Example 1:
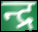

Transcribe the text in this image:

न्द्र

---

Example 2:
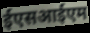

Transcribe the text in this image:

ईएसआईएम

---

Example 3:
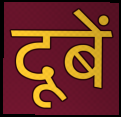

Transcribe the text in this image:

दूबें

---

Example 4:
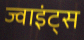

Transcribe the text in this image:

ज्वाइंट्स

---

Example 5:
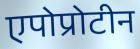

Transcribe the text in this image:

एपोप्रोटीन